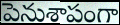
పెనుశాపంగా